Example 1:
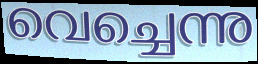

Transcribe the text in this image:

വെച്ചെന്നു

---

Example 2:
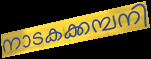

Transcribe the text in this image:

നാടകക്കമ്പനി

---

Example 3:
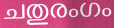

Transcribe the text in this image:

ചതുരംഗം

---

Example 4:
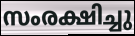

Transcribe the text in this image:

സംരക്ഷിച്ചു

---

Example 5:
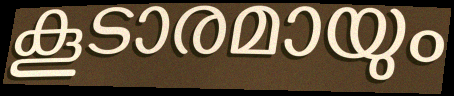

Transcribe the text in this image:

കൂടാരമായും